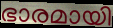
ഭാരമായി